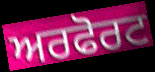
ਅਰਫੋਰਟ